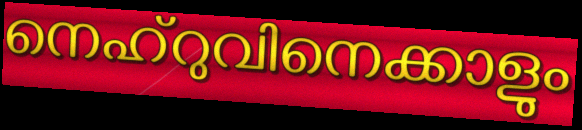
നെഹ്റുവിനെക്കാളും